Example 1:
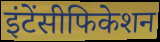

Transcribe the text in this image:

इंटेंसीफिकेशन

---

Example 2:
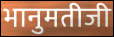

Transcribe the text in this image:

भानुमतीजी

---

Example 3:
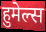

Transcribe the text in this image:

हुमेल्स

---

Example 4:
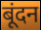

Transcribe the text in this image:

बूंदन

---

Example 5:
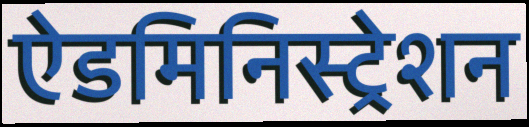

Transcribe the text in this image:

ऐडमिनिस्ट्रेशन